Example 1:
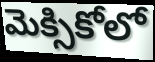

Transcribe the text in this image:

మెక్సికోలో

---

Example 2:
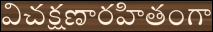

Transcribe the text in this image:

విచక్షణారహితంగా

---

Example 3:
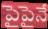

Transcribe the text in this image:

పైపైనే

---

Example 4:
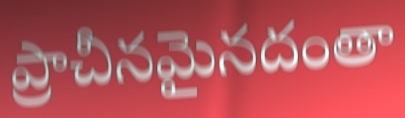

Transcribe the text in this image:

ప్రాచీనమైనదంతా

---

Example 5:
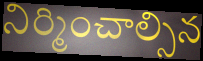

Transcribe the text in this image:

నిర్మించాల్సిన